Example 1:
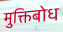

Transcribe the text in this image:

मुक्तिबोध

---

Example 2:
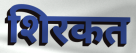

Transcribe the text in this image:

शिरकत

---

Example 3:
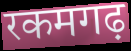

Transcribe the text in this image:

रकमगढ़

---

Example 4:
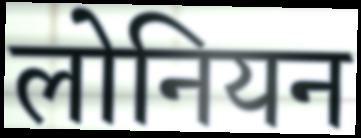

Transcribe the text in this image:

लोनियन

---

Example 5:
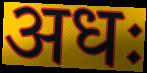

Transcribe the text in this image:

अधः